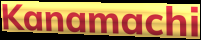
Kanamachi